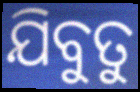
ଯିବୁତୁ